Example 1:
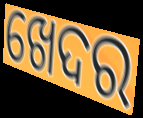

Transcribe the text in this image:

ଖେଦର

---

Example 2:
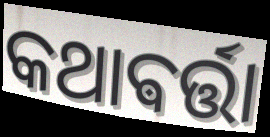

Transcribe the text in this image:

କଥାଵର୍ତ୍ତା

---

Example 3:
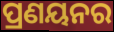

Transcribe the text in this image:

ପ୍ରଣୟନର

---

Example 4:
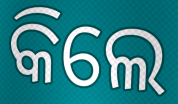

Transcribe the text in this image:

କିଲେ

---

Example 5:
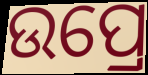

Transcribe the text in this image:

ଉପ୍ରେ